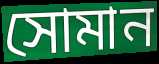
সোমান